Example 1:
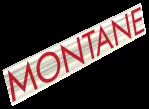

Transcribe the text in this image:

MONTANE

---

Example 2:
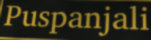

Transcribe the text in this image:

Puspanjali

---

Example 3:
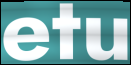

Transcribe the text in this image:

etu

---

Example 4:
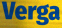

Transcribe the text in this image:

Verga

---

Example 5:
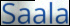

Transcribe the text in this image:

Saala